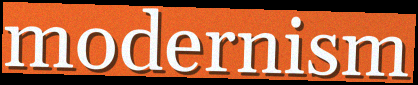
modernism